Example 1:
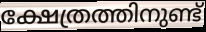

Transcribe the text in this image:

ക്ഷേത്രത്തിനുണ്ട്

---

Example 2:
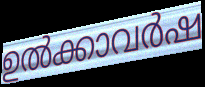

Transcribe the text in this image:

ഉൽക്കാവർഷ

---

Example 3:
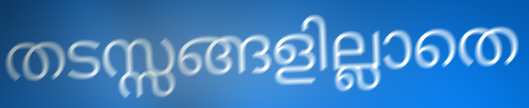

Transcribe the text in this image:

തടസ്സങ്ങളില്ലാതെ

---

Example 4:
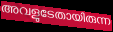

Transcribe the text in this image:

അവളുടേതായിരുന്ന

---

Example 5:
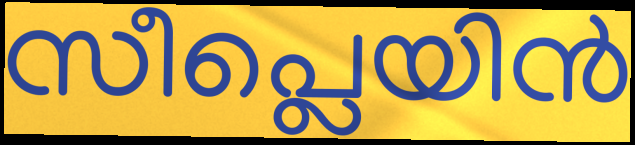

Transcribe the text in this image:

സീപ്ലെയിൻ